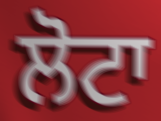
ਲੋਟਾ